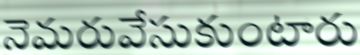
నెమరువేసుకుంటారు